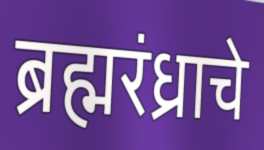
ब्रह्मरंध्राचे